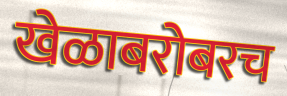
खेळाबरोबरच